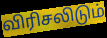
விரிசலிடும்